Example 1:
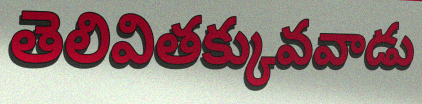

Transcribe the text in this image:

తెలివితక్కువవాడు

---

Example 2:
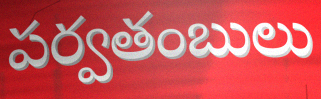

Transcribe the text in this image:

పర్వతంబులు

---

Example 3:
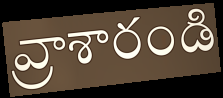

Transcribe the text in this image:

వ్రాశారండి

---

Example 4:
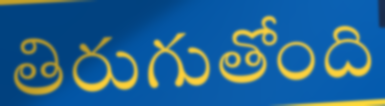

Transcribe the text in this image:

తిరుగుతోంది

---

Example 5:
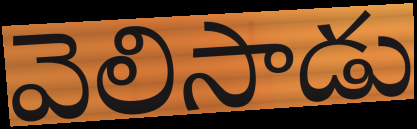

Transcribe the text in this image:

వెలిసాడు